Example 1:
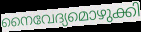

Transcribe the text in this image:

നൈവേദ്യമൊഴുക്കി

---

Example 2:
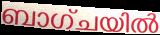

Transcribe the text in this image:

ബാഗ്ചയിൽ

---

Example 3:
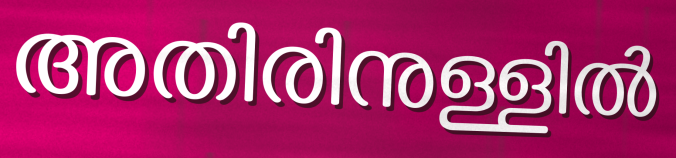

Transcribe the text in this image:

അതിരിനുള്ളിൽ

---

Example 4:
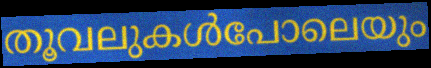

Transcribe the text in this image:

തൂവലുകൾപോലെയും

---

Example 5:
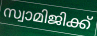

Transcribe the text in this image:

സ്വാമിജിക്ക്